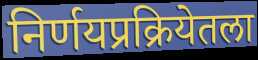
निर्णयप्रक्रियेतला